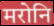
मरोनि